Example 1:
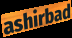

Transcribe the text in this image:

ashirbad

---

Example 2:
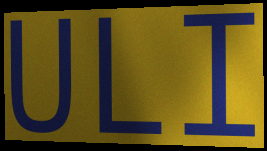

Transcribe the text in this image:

ULI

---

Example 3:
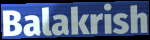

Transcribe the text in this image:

Balakrish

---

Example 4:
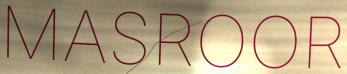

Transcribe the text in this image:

MASROOR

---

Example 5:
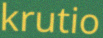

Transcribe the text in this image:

krutio